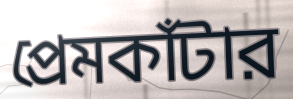
প্রেমকাঁটার